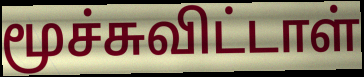
மூச்சுவிட்டாள்